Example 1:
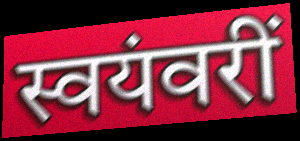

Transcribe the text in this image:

स्वयंवरीं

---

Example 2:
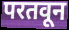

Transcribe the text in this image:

परतवून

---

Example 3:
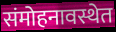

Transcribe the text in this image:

संमोहनावस्थेत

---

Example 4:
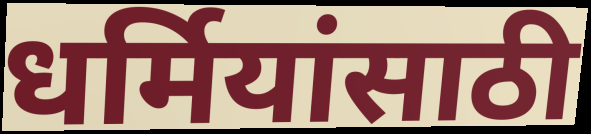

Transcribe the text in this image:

धर्मियांसाठी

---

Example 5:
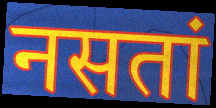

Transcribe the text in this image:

नसतां